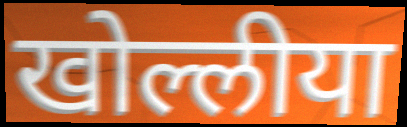
खोल्लीया